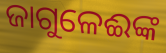
ଜାଗୁଳେଈଙ୍କ